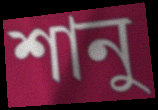
শানু